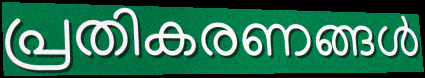
പ്രതികരണങ്ങൾ